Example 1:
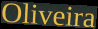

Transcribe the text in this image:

Oliveira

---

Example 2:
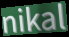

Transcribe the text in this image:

nikal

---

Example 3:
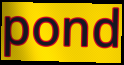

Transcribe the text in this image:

pond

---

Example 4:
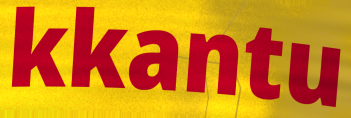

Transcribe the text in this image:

kkantu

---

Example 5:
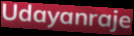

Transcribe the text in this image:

Udayanraje